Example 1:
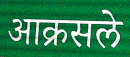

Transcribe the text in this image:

आक्रसले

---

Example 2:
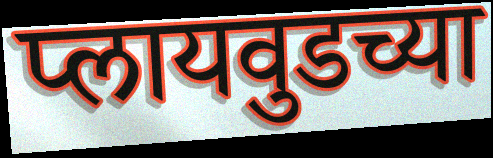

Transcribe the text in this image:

प्लायवुडच्या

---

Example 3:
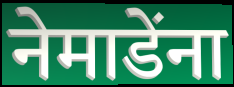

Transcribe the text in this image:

नेमाडेंना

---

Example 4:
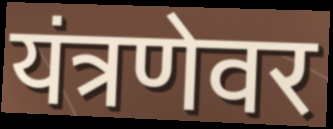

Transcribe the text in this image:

यंत्रणेवर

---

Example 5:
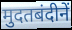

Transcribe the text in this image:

मुदतबंदीनें